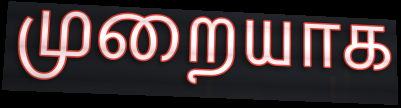
முறையாக